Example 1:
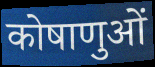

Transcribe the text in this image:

कोषाणुओं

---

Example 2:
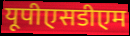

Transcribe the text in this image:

यूपीएसडीएम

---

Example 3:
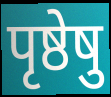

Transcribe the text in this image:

पृष्ठेषु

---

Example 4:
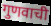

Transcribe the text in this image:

गुणवाची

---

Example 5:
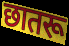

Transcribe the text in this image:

छातरू